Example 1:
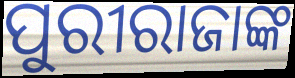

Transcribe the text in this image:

ପୁରୀରାଜାଙ୍କ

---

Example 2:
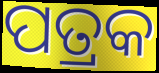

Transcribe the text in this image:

ପତ୍ରକ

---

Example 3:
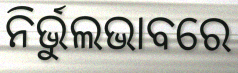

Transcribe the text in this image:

ନିର୍ଭୁଲଭାବରେ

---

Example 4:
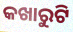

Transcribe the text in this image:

କଖାରୁଟି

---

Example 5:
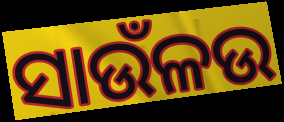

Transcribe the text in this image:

ସାଉଁଳଉ